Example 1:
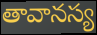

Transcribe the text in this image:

తావానస్య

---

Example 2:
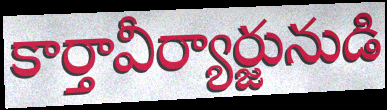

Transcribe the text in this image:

కార్తావీర్యార్జునుడి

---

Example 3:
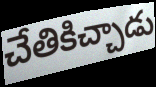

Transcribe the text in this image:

చేతికిచ్చాడు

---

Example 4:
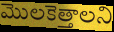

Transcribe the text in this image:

మొలకెత్తాలని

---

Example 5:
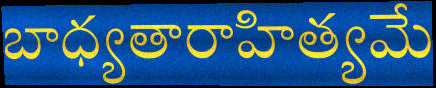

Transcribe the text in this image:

బాధ్యతారాహిత్యమే